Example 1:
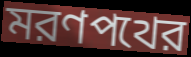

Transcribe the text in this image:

মরণপথের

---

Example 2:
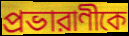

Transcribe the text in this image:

প্রভারাণীকে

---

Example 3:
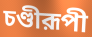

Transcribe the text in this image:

চণ্ডীরূপী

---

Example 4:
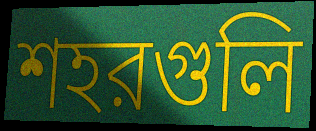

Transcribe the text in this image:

শহরগুলি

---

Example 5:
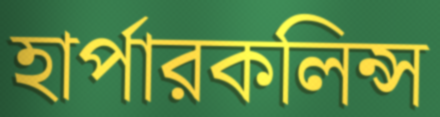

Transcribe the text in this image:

হার্পারকলিন্স